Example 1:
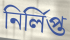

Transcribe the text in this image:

নির্লিপ্ত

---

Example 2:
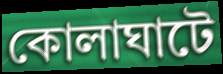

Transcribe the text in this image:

কোলাঘাটে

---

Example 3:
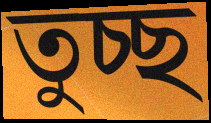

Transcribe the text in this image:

তুচ্ছ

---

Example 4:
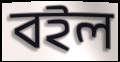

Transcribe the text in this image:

বইল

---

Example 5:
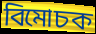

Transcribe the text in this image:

বিমোচক